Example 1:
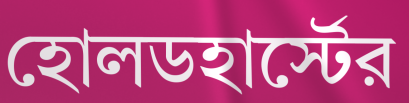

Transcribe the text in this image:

হোলডহার্স্টের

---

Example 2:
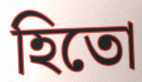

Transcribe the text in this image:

হিতো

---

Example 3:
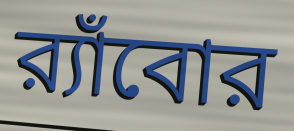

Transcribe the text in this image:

র‍্যাঁবোর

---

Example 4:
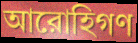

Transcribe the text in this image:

আরোহিগণ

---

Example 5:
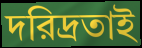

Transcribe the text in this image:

দরিদ্রতাই